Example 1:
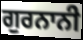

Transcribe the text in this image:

ਗੁਰਨਾਨੀ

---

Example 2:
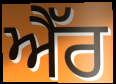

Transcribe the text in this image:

ਐੱਰ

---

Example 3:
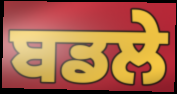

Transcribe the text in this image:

ਬਡਲੇ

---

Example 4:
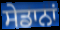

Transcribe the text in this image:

ਸੇਡਾਨਾਂ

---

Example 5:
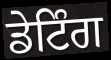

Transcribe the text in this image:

ਡੇਟਿੰਗ